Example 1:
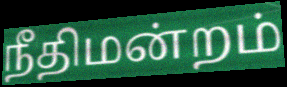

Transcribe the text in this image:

நீதிமன்றம்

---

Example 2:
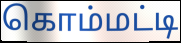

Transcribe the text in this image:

கொம்மட்டி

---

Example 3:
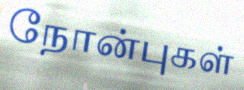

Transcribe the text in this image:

நோன்புகள்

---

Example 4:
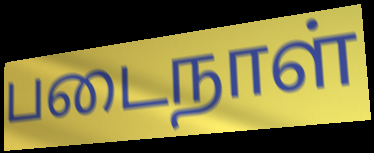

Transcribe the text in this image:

படைநாள்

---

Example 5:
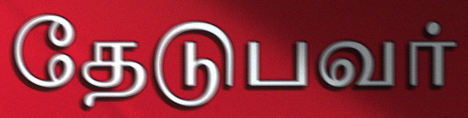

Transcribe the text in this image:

தேடுபவர்